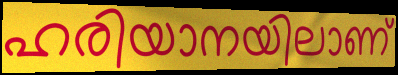
ഹരിയാനയിലാണ്